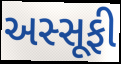
અસ્સૂફી